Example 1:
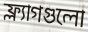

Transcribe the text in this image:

ফ্ল্যাগগুলো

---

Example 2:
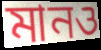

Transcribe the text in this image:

মানও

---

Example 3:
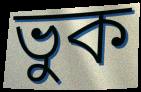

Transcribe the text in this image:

ভুক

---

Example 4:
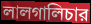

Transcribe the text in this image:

লালগালিচার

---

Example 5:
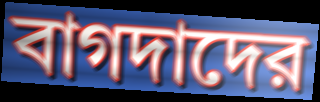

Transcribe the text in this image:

বাগদাদের